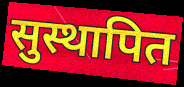
सुस्थापित